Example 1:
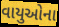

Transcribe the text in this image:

વાયુઓના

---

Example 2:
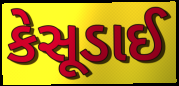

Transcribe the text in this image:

કેસૂડાઈ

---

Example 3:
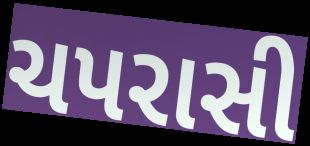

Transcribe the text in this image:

ચપરાસી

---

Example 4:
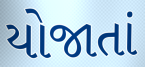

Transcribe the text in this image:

યોજાતાં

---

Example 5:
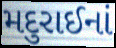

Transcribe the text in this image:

મદુરાઈનાં